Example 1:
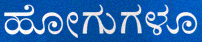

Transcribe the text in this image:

ಹೋಗುಗಳೂ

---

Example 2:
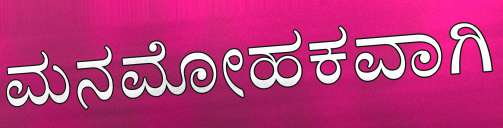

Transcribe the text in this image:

ಮನಮೋಹಕವಾಗಿ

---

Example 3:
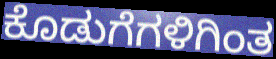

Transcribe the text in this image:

ಕೊಡುಗೆಗಳಿಗಿಂತ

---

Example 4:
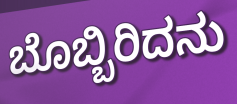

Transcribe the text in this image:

ಬೊಬ್ಬಿರಿದನು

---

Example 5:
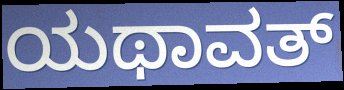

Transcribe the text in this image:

ಯಥಾವತ್